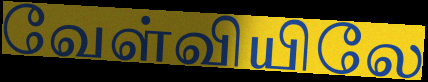
வேள்வியிலே